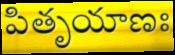
పితృయాణః